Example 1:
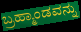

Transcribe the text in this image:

ಬ್ರಹ್ಮಾಂಡವನ್ನು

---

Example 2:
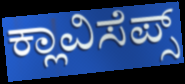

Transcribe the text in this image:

ಕ್ಲಾವಿಸೆಪ್ಸ್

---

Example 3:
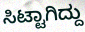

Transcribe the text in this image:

ಸಿಟ್ಟಾಗಿದ್ದು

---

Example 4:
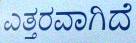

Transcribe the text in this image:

ಎತ್ತರವಾಗಿದೆ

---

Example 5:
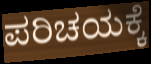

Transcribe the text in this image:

ಪರಿಚಯಕ್ಕೆ